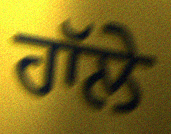
ਹਾੱਲੇ